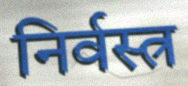
निर्वस्‍त्र